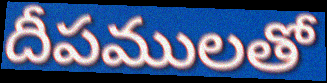
దీపములతో